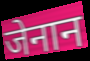
जेनान